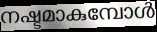
നഷ്ടമാകുമ്പോൾ